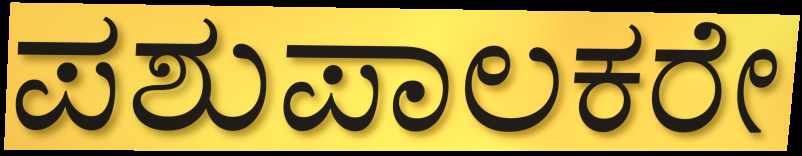
ಪಶುಪಾಲಕರೇ